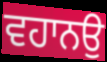
ਵਹਾਨਉ